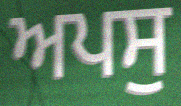
ਅਪਸੁ